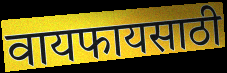
वायफायसाठी